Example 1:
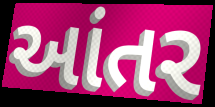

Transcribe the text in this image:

આંતર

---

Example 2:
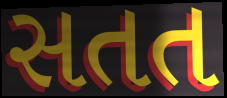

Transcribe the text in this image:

સતત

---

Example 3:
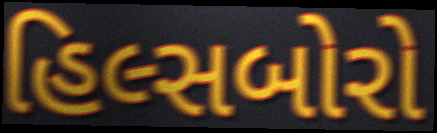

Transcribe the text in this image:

હિલ્સબોરો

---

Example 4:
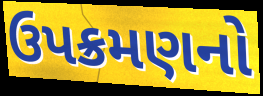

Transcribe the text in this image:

ઉપક્રમણનો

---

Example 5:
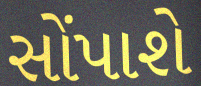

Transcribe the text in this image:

સોંપાશે